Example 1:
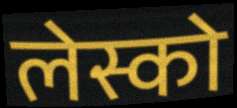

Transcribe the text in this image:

लेस्को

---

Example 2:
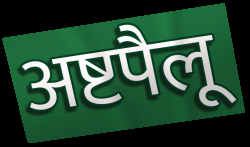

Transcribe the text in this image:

अष्टपैलू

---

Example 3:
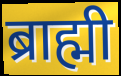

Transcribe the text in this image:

ब्राह्मी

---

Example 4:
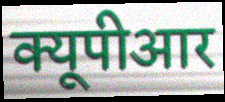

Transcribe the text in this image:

क्यूपीआर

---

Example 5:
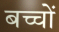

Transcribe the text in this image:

बच्चों